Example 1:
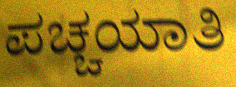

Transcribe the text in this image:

ಪಚ್ಚಯಾತಿ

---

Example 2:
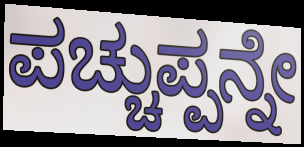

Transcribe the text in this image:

ಪಚ್ಚುಪ್ಪನ್ನೇ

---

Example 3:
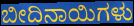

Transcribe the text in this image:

ಬೀದಿನಾಯಿಗಳು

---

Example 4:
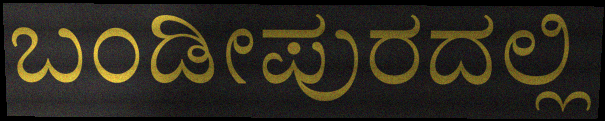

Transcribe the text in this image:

ಬಂಡೀಪುರದಲ್ಲಿ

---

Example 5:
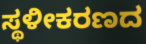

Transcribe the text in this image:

ಸ್ಥಳೀಕರಣದ